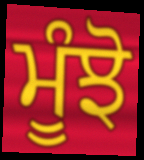
ਮੂੰਝੋ